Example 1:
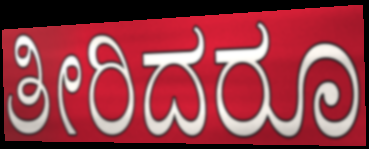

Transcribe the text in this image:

ತೀರಿದರೂ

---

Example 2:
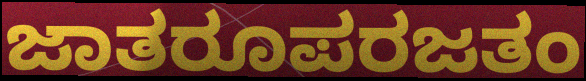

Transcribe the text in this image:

ಜಾತರೂಪರಜತಂ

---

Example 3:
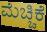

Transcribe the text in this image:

ಮೆಚ್ಚಿಕೆ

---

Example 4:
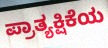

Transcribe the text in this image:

ಪ್ರಾತ್ಯಕ್ಷಿಕೆಯ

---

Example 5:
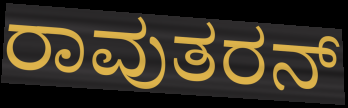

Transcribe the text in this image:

ರಾವುತರನ್